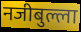
नजीबुल्ला